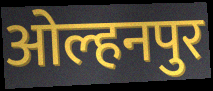
ओल्हनपुर